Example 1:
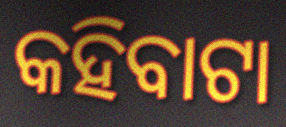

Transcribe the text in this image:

କହିବାଟା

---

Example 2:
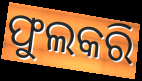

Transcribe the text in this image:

ଫୁଲକରି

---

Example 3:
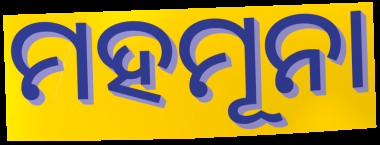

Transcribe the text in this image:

ମହମୂନା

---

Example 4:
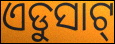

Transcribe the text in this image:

ଏଡୁସାଟ୍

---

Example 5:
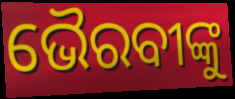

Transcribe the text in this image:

ଭୈରବୀଙ୍କୁ